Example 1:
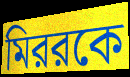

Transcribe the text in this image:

মিররকে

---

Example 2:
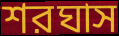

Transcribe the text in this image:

শরঘাস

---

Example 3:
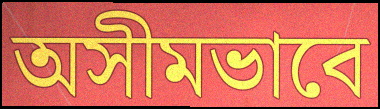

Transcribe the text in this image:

অসীমভাবে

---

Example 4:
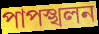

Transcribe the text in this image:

পাপস্খলন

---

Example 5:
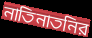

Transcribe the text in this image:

নাতিনাতনির